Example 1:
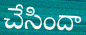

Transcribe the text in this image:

చేసిందా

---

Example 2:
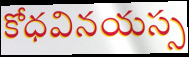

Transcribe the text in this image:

కోధవినయస్స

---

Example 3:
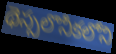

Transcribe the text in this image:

థెస్సలొనీకలోని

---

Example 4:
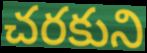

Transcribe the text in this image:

చరకుని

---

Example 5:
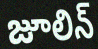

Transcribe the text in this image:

జూలిన్